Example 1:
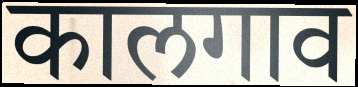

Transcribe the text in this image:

कालगाव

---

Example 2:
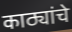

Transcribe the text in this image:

काठ्यांचे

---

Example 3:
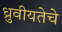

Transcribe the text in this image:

ध्रुवीयतेचे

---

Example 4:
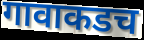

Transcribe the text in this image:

गावाकडच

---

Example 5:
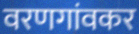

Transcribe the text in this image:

वरणगांवकर